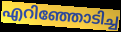
എറിഞ്ഞോടിച്ച